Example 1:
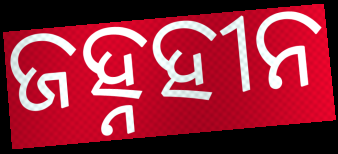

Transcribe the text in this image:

ଜହ୍ନହୀନ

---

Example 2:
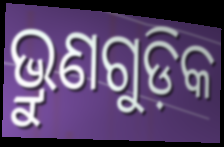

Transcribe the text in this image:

ଭ୍ରୁଣଗୁଡ଼ିକ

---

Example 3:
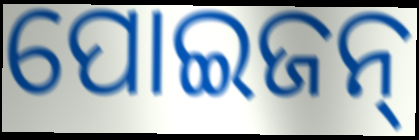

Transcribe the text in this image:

ପୋଇଜନ୍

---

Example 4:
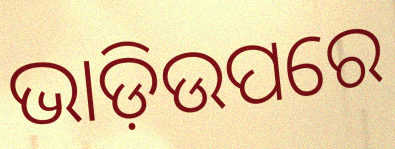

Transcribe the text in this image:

ଭାଡ଼ିଉପରେ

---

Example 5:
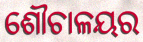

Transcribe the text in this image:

ଶୌଚାଳୟର